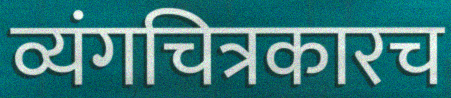
व्यंगचित्रकारच